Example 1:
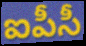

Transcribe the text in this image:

ఐపీసీ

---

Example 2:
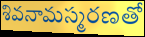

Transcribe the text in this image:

శివనామస్మరణతో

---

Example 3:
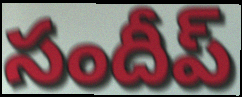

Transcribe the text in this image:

సందీప్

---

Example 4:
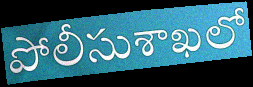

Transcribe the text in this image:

పోలీసుశాఖలో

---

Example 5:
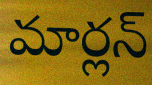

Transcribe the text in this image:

మార్లన్